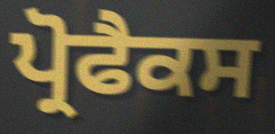
ਪ੍ਰੋਫੈਕਸ